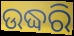
ଉଦ୍ଧରି